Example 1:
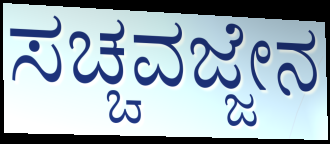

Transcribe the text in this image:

ಸಚ್ಚವಜ್ಜೇನ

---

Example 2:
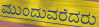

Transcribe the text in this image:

ಮುಂದುವರೆದರು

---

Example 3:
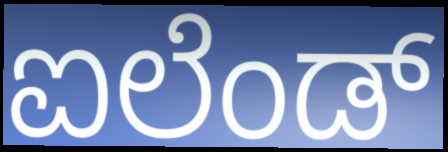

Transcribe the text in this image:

ಐಲೆಂಡ್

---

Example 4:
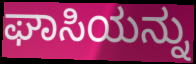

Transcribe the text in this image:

ಘಾಸಿಯನ್ನು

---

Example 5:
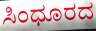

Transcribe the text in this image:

ಸಿಂಧೂರದ